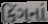
કિંગનાં